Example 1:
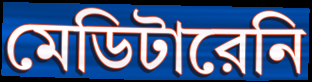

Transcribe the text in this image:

মেডিটারেনি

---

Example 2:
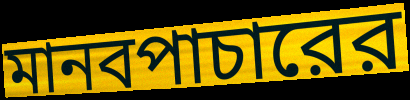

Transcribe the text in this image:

মানবপাচারের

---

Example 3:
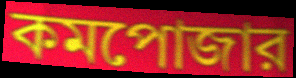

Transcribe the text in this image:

কমপোজার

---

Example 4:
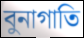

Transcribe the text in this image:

বুনাগাতি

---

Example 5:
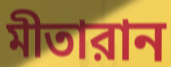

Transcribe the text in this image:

মীতারান